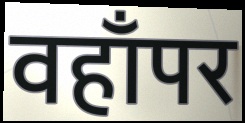
वहाँपर